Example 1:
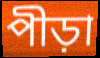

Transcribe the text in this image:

পীড়া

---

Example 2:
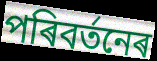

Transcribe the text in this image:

পৰিবৰ্তনেৰ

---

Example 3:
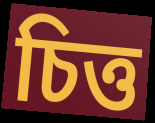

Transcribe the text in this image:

চিত্ত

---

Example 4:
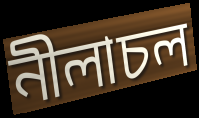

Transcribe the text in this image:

নীলাচল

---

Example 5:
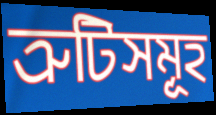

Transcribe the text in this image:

ত্ৰুটিসমূহ